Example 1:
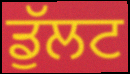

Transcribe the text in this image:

ਡੁੱਲਟ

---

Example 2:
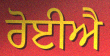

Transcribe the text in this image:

ਰੋਈਐ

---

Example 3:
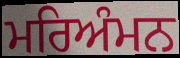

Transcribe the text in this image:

ਮਰਿਅੰਮਨ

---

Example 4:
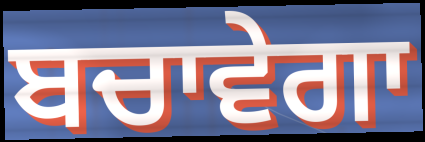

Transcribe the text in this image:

ਬਚਾਵੇਗਾ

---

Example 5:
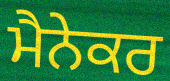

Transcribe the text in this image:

ਮੈਨੇਕਰ